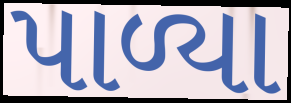
પાળ્યા